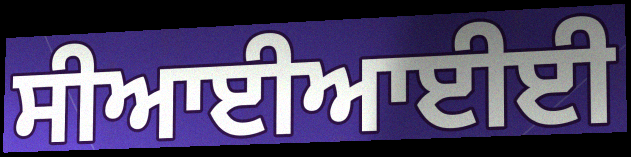
ਸੀਆਈਆਈਈ